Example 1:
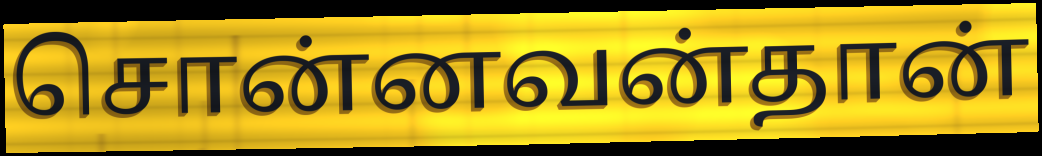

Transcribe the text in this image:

சொன்னவன்தான்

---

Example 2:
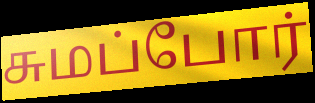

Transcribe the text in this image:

சுமப்போர்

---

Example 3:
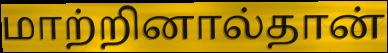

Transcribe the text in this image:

மாற்றினால்தான்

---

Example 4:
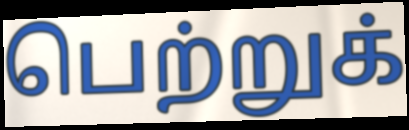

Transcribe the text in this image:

பெற்றுக்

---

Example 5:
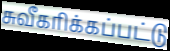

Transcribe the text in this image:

சுவீகரிக்கப்பட்டு